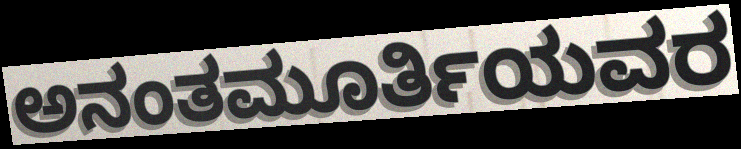
ಅನಂತಮೂರ್ತಿಯವರ